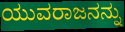
ಯುವರಾಜನನ್ನು